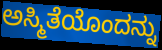
ಅಸ್ಮಿತೆಯೊಂದನ್ನು